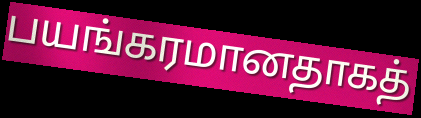
பயங்கரமானதாகத்